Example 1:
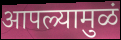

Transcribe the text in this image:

आपल्यामुळं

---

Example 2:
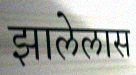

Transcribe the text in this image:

झालेलास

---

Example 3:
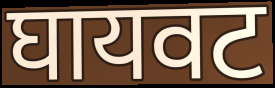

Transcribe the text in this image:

घायवट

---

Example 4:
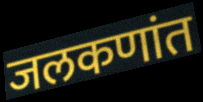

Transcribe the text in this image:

जलकणांत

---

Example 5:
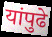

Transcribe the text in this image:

यांपुढे